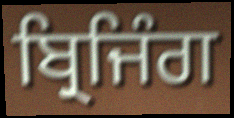
ਬ੍ਰਿਜਿੰਗ